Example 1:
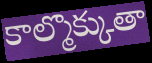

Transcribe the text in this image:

కాల్మొక్కుతా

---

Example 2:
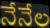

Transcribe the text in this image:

నేనేల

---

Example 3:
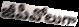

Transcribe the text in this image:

జీపీవోలుగా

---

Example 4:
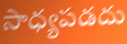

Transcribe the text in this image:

సాధ్యపడదు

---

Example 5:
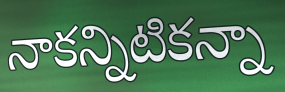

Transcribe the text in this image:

నాకన్నిటికన్నా